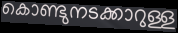
കൊണ്ടുനടക്കാറുള്ള